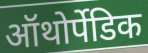
ऑथोर्पेडिक